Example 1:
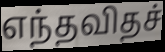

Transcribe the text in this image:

எந்தவிதச்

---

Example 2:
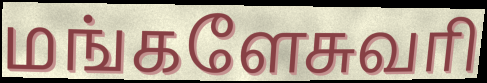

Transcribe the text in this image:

மங்களேசுவரி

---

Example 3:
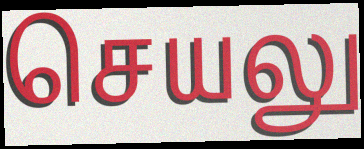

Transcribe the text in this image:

செயலு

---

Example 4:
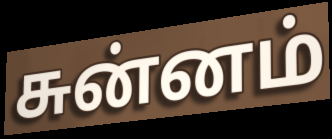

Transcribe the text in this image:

சுன்னம்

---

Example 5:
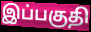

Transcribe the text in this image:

இப்பகுதி